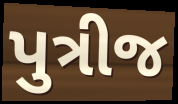
પુત્રીજ